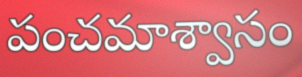
పంచమాశ్వాసం